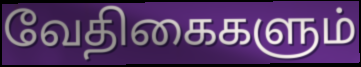
வேதிகைகளும்